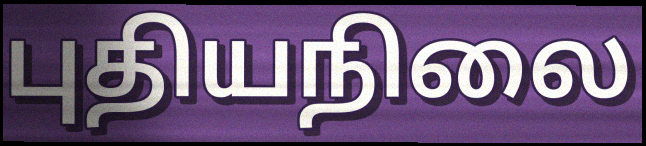
புதியநிலை